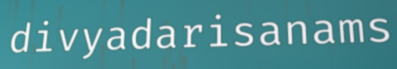
divyadarisanams